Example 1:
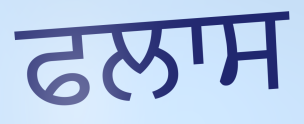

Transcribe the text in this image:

ਫਲਾਸ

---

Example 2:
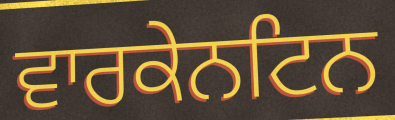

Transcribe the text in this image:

ਵਾਰਕੇਨਟਿਨ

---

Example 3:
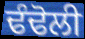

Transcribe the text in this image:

ਢੰਢੋਲੀ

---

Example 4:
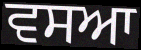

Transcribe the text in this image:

ਵਸਆ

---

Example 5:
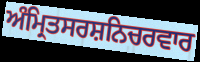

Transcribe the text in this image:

ਅੰਮ੍ਰਿਤਸਰਸ਼ਨਿਚਰਵਾਰ